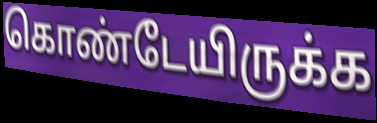
கொண்டேயிருக்க